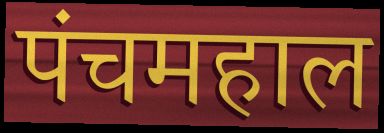
पंचमहाल